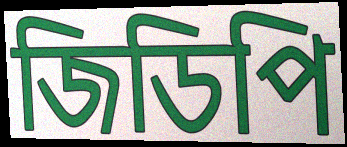
জিডিপি